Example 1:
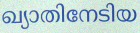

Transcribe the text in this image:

ഖ്യാതിനേടിയ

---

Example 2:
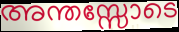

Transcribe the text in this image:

അന്തസ്സോടെ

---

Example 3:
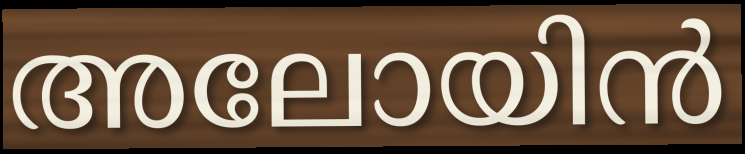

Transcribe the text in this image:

അലോയിൻ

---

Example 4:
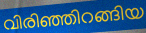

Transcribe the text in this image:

വിരിഞ്ഞിറങ്ങിയ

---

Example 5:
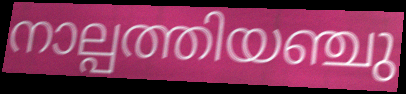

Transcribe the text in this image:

നാല്പത്തിയഞ്ചു